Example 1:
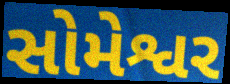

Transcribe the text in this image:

સોમેશ્વર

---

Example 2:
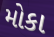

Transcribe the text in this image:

મોકા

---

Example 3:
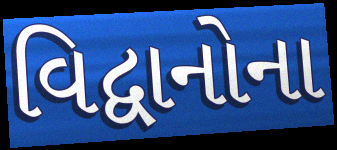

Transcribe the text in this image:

વિદ્વાનોના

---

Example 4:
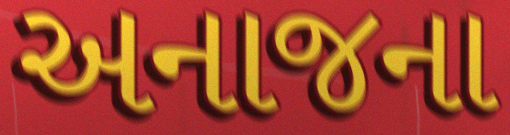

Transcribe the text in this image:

અનાજના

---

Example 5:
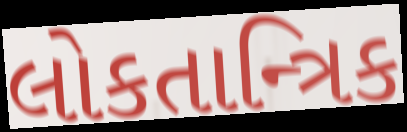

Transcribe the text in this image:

લોકતાન્ત્રિક